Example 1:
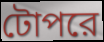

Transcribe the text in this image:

টোপরে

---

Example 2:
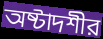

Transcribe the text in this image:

অষ্টাদশীর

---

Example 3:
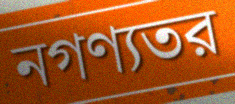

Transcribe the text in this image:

নগণ্যতর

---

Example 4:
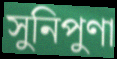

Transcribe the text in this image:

সুনিপুণা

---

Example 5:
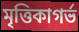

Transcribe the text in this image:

মৃত্তিকাগর্ভ